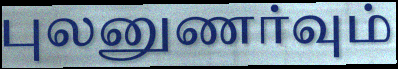
புலனுணர்வும்